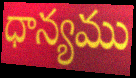
ధాన్యము